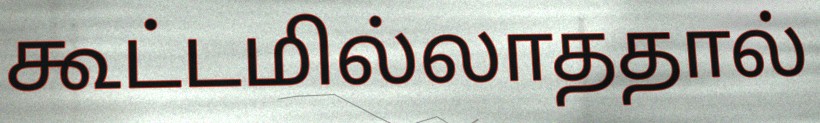
கூட்டமில்லாததால்